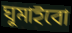
ঘুমাইবো